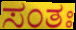
ಸಂತಃ